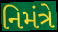
નિમંત્રે